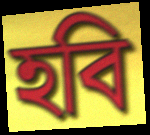
হবি